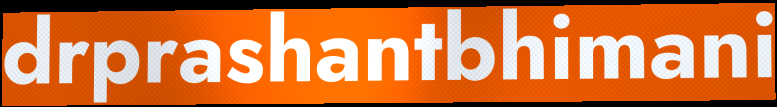
drprashantbhimani